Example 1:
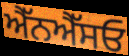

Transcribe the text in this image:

ਐੱਨਐੱਸਓ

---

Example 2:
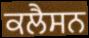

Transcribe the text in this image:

ਕਲੈਸਨ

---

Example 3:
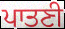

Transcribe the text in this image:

ਪਾਤਣੀ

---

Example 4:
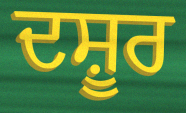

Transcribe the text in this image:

ਦਸ਼ੂਰ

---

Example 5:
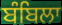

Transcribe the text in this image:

ਬੰਬਿਲਾ